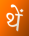
थें